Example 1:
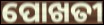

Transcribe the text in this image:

ପୋଖତୀ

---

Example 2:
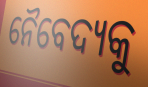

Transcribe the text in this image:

ନୈବେଦ୍ୟକୁ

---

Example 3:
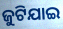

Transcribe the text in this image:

ଜୁଟିଯାଇ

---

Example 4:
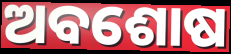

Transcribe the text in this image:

ଅବଶୋଷ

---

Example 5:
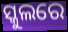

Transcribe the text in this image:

ସ୍କୁଲରେ